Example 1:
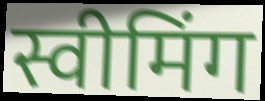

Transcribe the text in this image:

स्‍वीमिंग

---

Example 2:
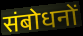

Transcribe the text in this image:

संबोधनों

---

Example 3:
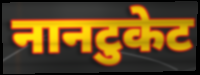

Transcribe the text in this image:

नानटुकेट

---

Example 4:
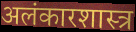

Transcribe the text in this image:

अलंकारशास्त्र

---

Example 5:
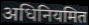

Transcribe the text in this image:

अधिनियमित